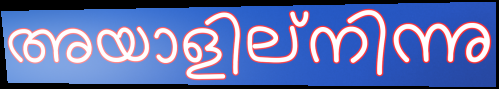
അയാളില്നിന്നു